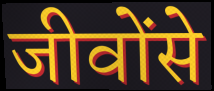
जीवोंसे